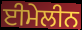
ਈਮੇਲੀਨ